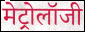
मेट्रोलॉजी